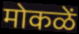
मोकळें